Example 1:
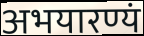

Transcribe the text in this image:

अभयारण्यं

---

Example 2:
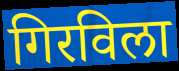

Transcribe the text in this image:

गिरविला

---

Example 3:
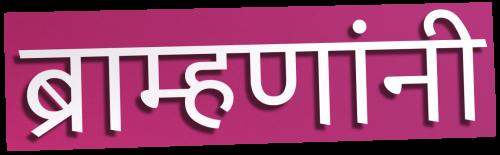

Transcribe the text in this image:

ब्राम्हणांनी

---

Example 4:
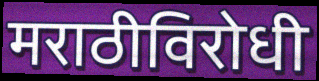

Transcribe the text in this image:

मराठीविरोधी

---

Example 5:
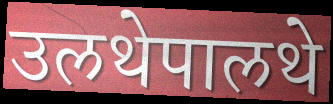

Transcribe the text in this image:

उलथेपालथे